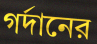
গর্দানের